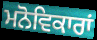
ਮਨੋਵਿਕਾਰਾਂ